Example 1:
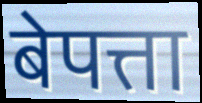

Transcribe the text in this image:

बेपत्ता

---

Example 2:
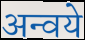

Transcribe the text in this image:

अन्वये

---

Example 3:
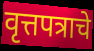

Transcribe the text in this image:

वृत्तपत्राचे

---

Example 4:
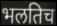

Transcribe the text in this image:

भलतिच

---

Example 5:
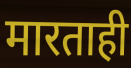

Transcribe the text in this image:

मारताही